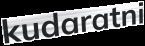
kudaratni